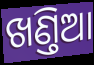
ଖଣ୍ତିଆ